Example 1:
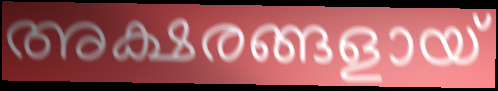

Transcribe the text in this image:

അക്ഷരങ്ങളായ്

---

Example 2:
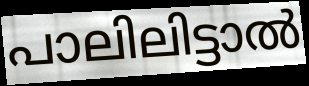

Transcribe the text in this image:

പാലിലിട്ടാൽ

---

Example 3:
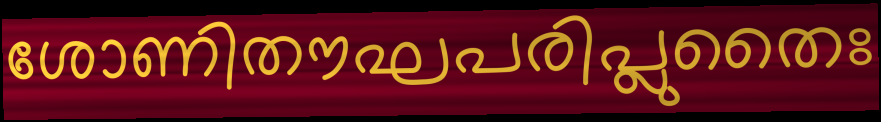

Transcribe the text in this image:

ശോണിതൗഘപരിപ്ലുതൈഃ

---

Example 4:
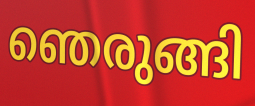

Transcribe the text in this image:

ഞെരുങ്ങി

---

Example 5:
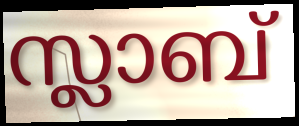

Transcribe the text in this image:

സ്ലാബ്